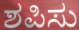
ಶಪಿಸು